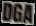
DGA